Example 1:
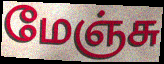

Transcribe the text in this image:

மேஞ்சு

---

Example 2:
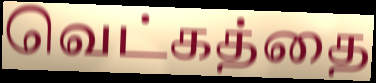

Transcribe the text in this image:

வெட்கத்தை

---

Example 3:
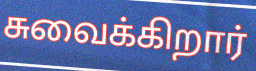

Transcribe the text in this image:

சுவைக்கிறார்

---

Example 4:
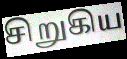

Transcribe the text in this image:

சிறுகிய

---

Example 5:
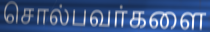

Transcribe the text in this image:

சொல்பவர்களை